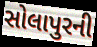
સોલાપુરની